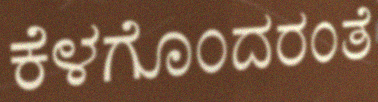
ಕೆಳಗೊಂದರಂತೆ